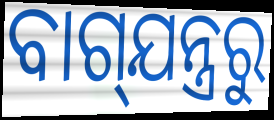
ବାଗ୍‌ଯନ୍ତ୍ରରୁ